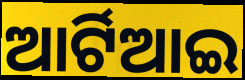
ଆର୍ଟିଆଇ